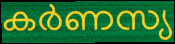
കർണസ്യ